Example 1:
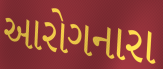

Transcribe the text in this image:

આરોગનારા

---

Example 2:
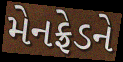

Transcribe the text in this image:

મેનફ્રેડને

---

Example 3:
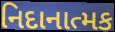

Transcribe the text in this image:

નિદાનાત્મક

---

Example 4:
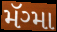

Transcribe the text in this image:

મૅગ્મા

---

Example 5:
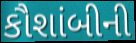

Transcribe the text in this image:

કૌશાંબીની